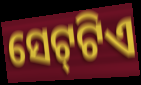
ସେଟ୍‍ଟିଏ